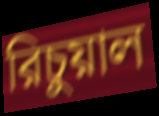
রিচুয়াল